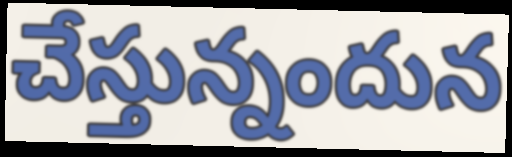
చేస్తున్నందున